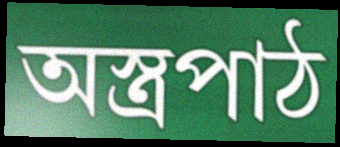
অস্ত্রপাঠ